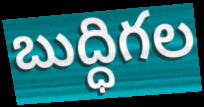
బుద్ధిగల